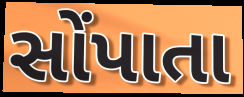
સોંપાતા